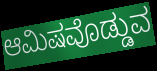
ಆಮಿಷವೊಡ್ಡುವ